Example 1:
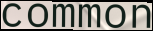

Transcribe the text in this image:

common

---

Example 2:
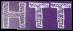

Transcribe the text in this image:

HTT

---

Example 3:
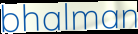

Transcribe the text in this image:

bhalman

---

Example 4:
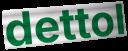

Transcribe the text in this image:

dettol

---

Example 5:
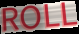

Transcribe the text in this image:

ROLL